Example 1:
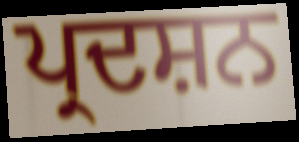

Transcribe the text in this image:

ਪ੍ਰਦਸ਼ਨ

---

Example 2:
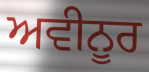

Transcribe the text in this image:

ਅਵੀਨੂਰ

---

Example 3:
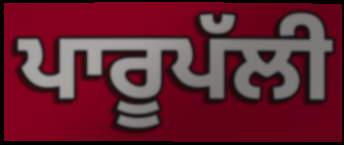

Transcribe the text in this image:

ਪਾਰੂਪੱਲੀ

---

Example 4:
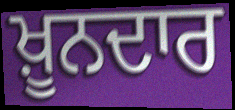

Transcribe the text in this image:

ਖ਼ੂਨਦਾਰ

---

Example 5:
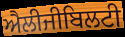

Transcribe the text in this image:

ਐਲੀਜੀਬਿਲਟੀ